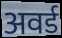
अवर्ड